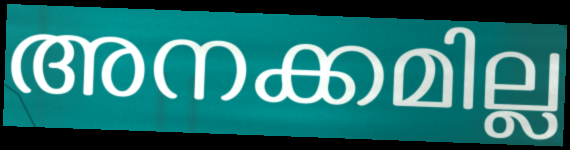
അനക്കമില്ല